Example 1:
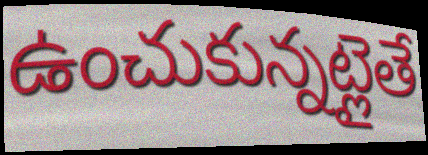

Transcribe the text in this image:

ఉంచుకున్నట్లైతే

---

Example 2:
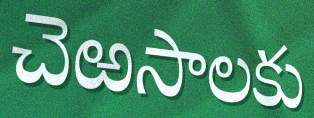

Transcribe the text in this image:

చెఱసాలకు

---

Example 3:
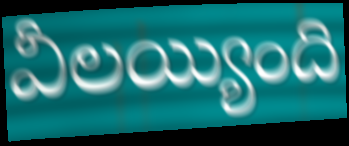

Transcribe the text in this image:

వీలయ్యింది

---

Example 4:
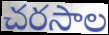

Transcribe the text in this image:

చరసాల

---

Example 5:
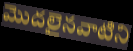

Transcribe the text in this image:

మొదలైనవాటిని